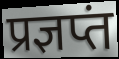
प्रज्ञप्तं